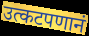
उत्कटपणानं